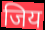
जिय